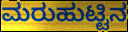
ಮರುಹುಟ್ಟಿನ